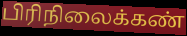
பிரிநிலைக்கண்